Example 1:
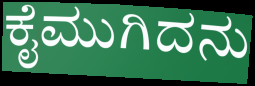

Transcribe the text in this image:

ಕೈಮುಗಿದನು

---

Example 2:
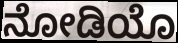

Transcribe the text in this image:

ನೋಡಿಯೊ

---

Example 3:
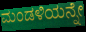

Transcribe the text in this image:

ಮಂಡಳಿಯನ್ನೇ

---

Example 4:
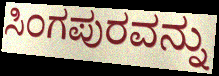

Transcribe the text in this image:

ಸಿಂಗಪುರವನ್ನು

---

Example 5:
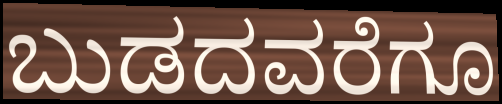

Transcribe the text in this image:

ಬುಡದವರೆಗೂ